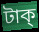
টাক্